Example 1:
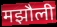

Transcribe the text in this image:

मझौली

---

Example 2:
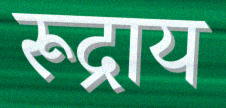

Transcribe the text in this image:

रूद्राय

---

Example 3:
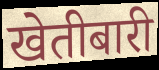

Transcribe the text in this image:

खेतीबारी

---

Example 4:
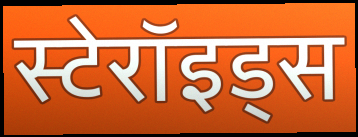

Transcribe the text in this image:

स्टेरॉइड्स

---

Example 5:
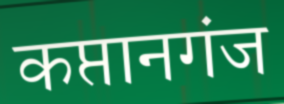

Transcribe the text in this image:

कप्तानगंज